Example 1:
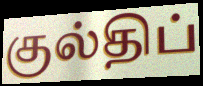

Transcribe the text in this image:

குல்திப்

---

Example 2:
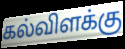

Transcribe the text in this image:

கல்விளக்கு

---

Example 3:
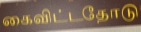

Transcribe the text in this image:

கைவிட்டதோடு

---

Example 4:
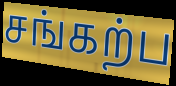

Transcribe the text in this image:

சங்கற்ப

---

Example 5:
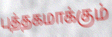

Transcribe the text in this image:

புத்தகமாக்கும்